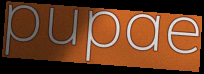
pupae